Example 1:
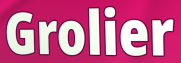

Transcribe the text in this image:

Grolier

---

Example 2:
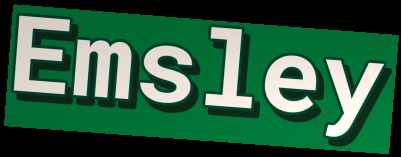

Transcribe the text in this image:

Emsley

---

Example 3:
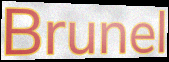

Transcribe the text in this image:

Brunel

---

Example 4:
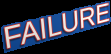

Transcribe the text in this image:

FAILURE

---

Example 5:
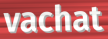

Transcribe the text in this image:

vachat